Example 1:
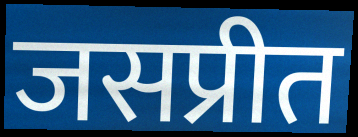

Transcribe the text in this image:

जसप्रीत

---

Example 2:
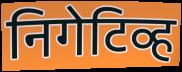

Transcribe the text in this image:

निगेटिव्ह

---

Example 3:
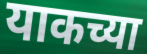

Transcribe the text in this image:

याकच्या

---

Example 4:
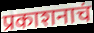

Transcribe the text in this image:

प्रकाशनाचं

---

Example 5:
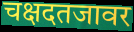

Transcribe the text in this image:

चक्षदतजावर